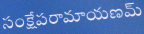
సంక్షేపరామాయణమ్